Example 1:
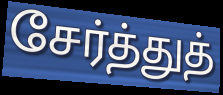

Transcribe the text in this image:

சேர்த்துத்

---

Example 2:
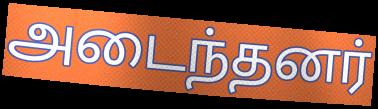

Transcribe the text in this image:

அடைந்தனர்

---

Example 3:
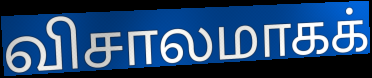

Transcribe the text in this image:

விசாலமாகக்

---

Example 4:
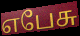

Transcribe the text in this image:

எபேசு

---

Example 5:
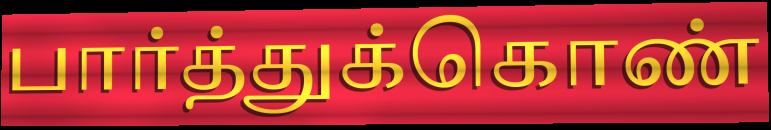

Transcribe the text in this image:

பார்த்துக்கொண்